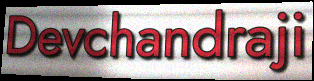
Devchandraji